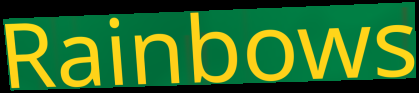
Rainbows